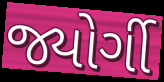
જ્યોર્ગી